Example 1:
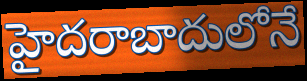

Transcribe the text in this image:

హైదరాబాదులోనే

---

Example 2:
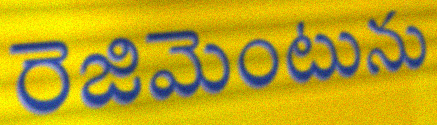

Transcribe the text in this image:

రెజిమెంటును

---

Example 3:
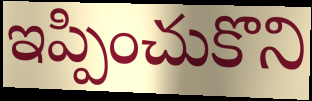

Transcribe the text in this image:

ఇప్పించుకొని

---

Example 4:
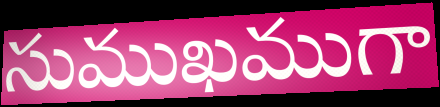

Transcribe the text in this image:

సుముఖముగా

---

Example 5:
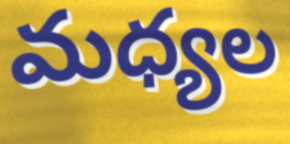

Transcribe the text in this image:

మధ్యల